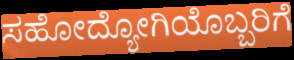
ಸಹೋದ್ಯೋಗಿಯೊಬ್ಬರಿಗೆ